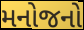
મનોજનો